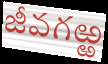
జీవగఱ్ఱ